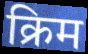
क्रिम